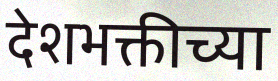
देशभक्तीच्या